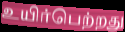
உயிர்பெற்றது